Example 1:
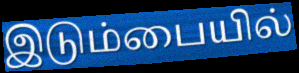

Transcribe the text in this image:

இடும்பையில்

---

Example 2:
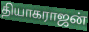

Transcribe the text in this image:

தியாகராஜன்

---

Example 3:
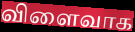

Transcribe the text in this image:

விளைவாக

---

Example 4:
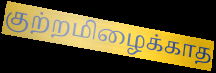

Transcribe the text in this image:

குற்றமிழைக்காத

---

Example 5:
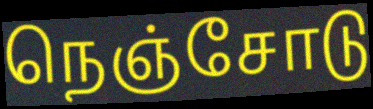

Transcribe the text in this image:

நெஞ்சோடு